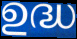
ഉദ്ധ